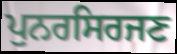
ਪੁਨਰਸਿਰਜਣ